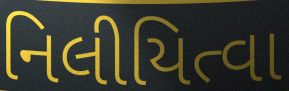
નિલીયિત્વા